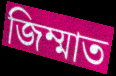
জিম্মাত